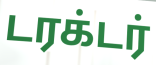
டரக்டர்